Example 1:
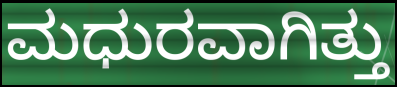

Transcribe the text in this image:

ಮಧುರವಾಗಿತ್ತು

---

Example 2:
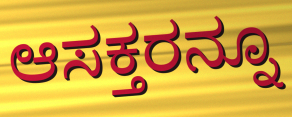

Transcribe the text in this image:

ಆಸಕ್ತರನ್ನೂ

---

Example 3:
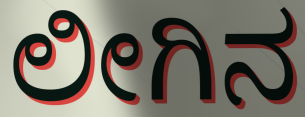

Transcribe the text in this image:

ಲೀಗಿನ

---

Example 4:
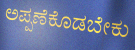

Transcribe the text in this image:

ಅಪ್ಪಣೆಕೊಡಬೇಕು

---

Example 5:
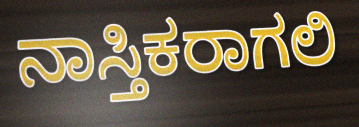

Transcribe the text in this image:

ನಾಸ್ತಿಕರಾಗಲಿ